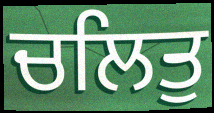
ਚਲਿਤੁ